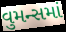
વુમન્સમાં